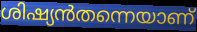
ശിഷ്യൻതന്നെയാണ്